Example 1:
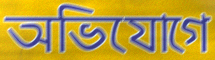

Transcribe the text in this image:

অভিযোগে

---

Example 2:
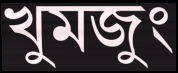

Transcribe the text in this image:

খুমজুং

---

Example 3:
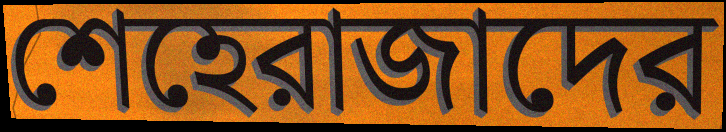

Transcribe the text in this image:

শেহেরাজাদের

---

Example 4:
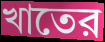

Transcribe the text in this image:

খাতের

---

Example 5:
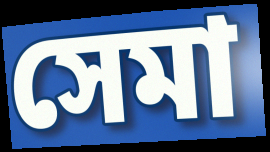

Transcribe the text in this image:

সেমা